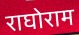
राघोराम